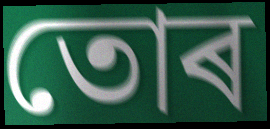
তোৰ